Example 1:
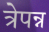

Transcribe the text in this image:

त्रेपन्न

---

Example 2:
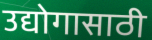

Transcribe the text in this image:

उद्योगासाठी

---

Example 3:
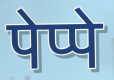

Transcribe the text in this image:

पेप्पे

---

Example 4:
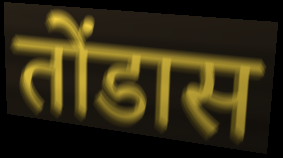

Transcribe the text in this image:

तोंडास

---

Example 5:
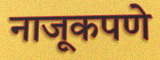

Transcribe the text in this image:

नाजूकपणे